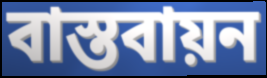
বাস্তবায়ন